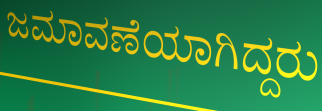
ಜಮಾವಣೆಯಾಗಿದ್ದರು